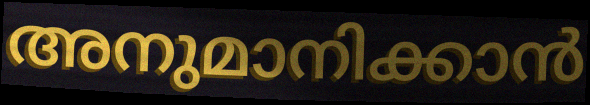
അനുമാനിക്കാൻ